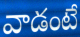
వాడంటే